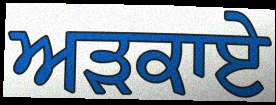
ਅੜਕਾਏ